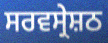
ਸਰਵਸ੍ਰੇਸ਼ਠ